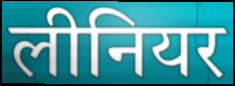
लीनियर